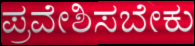
ಪ್ರವೇಶಿಸಬೇಕು